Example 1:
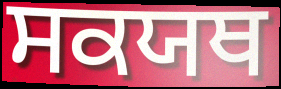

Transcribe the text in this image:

ਸਕਯਥ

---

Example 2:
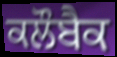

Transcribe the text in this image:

ਕਲੌਬੈਕ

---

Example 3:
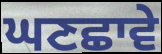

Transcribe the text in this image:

ਘਣਛਾਵੇ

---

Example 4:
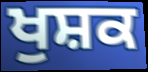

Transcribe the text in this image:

ਖੁਸ਼ਕ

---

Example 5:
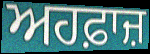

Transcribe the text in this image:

ਅਹਫ਼ਾਜ਼